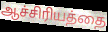
ஆச்சிரியத்தை